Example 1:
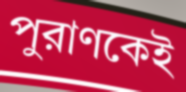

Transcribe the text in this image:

পুরাণকেই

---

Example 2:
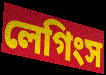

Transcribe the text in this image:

লেগিংস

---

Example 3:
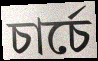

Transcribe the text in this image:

চার্চে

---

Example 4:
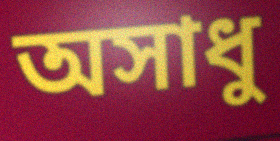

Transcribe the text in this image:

অসাধু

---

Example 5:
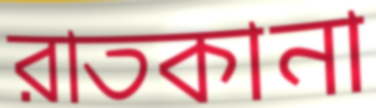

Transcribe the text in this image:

রাতকানা